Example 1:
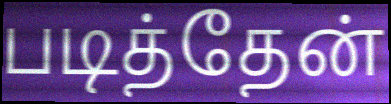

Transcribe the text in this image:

படித்தேன்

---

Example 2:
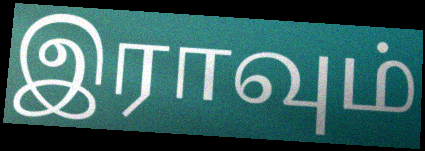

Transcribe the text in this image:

இராவும்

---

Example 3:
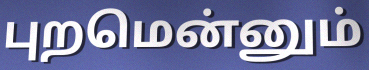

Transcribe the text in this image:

புறமென்னும்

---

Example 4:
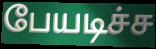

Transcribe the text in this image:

பேயடிச்ச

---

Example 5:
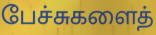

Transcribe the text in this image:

பேச்சுகளைத்